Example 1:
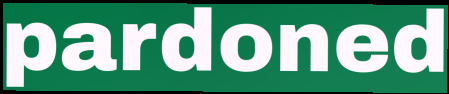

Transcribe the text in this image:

pardoned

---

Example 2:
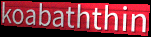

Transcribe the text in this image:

koabaththin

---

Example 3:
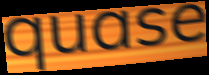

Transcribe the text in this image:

quase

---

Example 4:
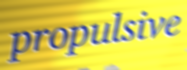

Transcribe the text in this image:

propulsive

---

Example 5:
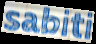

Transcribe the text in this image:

sabiti